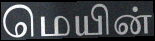
மெயின்